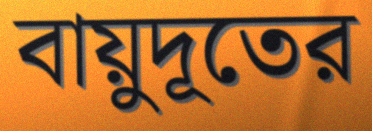
বায়ুদূতের